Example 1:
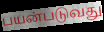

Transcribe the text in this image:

பயன்படுவது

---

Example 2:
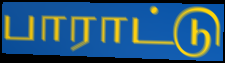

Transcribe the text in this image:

பாராட்டு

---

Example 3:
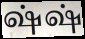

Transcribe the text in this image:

ஷ்ஷ்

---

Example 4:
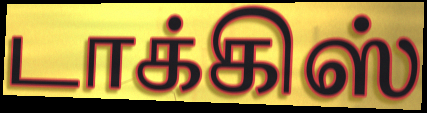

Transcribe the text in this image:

டாக்கிஸ்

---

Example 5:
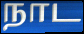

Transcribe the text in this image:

நாட